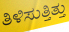
ತಿಳಿಸುತ್ತಿತ್ತು